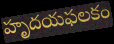
హృదయఫలకం